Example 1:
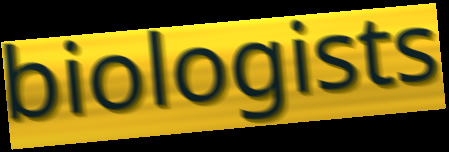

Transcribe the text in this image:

biologists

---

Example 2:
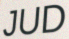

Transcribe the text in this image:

JUD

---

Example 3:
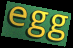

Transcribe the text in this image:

egg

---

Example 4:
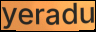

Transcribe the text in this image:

yeradu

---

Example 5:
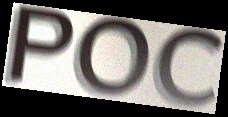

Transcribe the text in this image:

POC